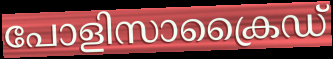
പോളിസാക്രൈഡ്